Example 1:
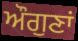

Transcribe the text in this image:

ਔਗੁਣਾਂ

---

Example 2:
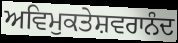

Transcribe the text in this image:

ਅਵਿਮੁਕਤੇਸ਼ਵਰਾਨੰਦ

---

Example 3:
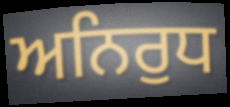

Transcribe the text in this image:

ਅਨਿਰੁਧ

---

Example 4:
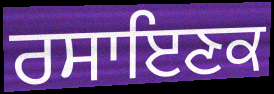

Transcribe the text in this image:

ਰਸਾਇਣਕ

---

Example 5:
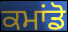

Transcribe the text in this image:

ਕਮਾਂਡੋ